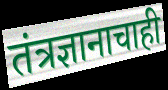
तंत्रज्ञानाचाही